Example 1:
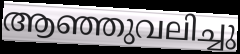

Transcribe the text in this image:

ആഞ്ഞുവലിച്ചു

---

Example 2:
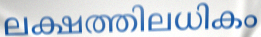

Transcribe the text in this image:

ലക്ഷത്തിലധികം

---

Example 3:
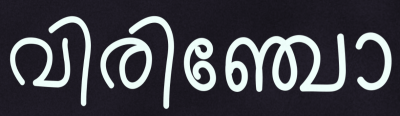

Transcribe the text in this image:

വിരിഞ്ചോ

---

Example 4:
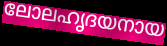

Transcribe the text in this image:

ലോലഹൃദയനായ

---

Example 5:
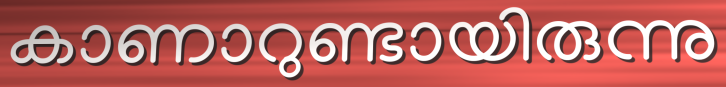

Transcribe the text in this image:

കാണാറുണ്ടായിരുന്നു